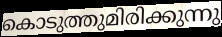
കൊടുത്തുമിരിക്കുന്നു